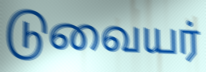
டுவையர்